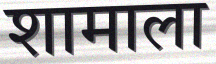
शामाला